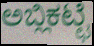
ಅಬ್ಲಿಕಟ್ಟೆ